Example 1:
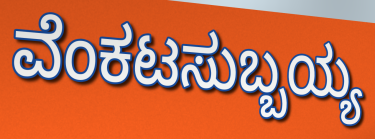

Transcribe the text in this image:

ವೆಂಕಟಸುಬ್ಬಯ್ಯ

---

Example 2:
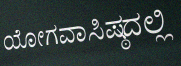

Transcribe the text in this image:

ಯೋಗವಾಸಿಷ್ಠದಲ್ಲಿ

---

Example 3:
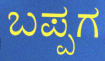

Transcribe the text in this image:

ಬಪ್ಪಗ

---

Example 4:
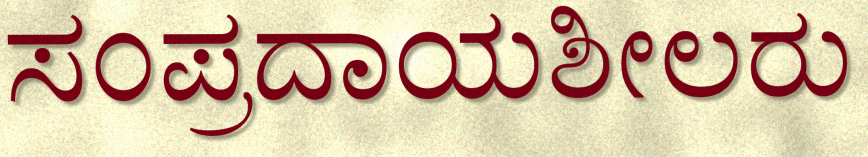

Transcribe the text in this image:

ಸಂಪ್ರದಾಯಶೀಲರು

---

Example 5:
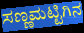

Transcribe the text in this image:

ಸಣ್ಣಮಟ್ಟಿಗಿನ